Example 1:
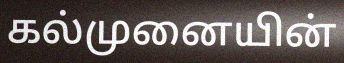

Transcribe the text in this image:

கல்முனையின்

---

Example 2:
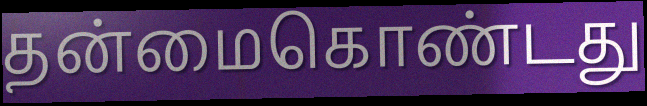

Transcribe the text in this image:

தன்மைகொண்டது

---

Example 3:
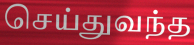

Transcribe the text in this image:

செய்துவந்த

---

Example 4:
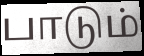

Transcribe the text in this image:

பாடும்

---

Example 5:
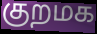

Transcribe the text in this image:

குறமக